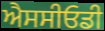
ਐਸਸੀਓਡੀ